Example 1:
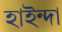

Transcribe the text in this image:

হাইন্দা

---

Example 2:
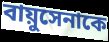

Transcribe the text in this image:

বায়ুসেনাকে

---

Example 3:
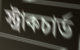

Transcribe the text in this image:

স্ট্রাকচার্ড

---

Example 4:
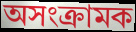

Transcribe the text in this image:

অসংক্রামক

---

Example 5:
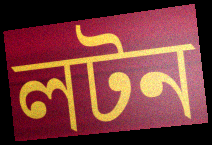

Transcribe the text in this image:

লটন